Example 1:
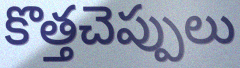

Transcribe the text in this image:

కొత్తచెప్పులు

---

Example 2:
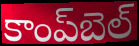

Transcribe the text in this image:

కాంప్‌బెల్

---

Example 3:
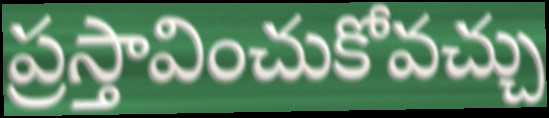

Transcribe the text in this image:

ప్రస్తావించుకోవచ్చు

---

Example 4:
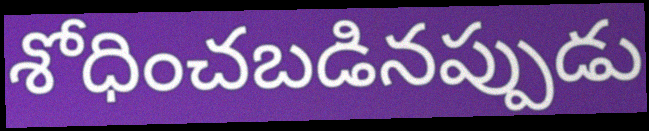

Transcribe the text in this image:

శోధించబడినప్పుడు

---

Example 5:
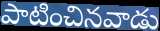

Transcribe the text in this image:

పాటించినవాడు